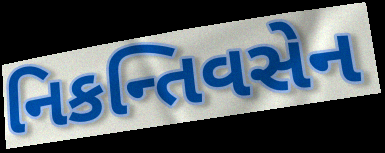
નિકન્તિવસેન